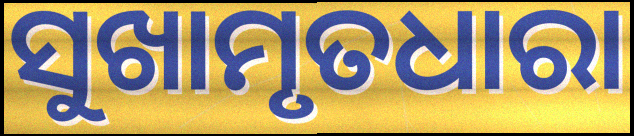
ସୁଖାମୃତଧାରା